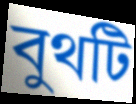
বুথটি